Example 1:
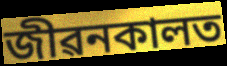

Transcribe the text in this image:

জীৱনকালত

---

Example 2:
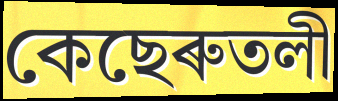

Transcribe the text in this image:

কেছেৰুতলী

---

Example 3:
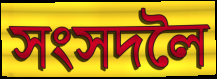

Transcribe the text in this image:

সংসদলৈ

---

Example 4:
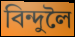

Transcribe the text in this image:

বিন্দুলৈ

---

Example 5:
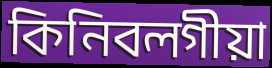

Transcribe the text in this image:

কিনিবলগীয়া